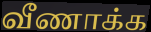
வீணாக்க